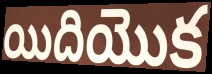
యిదియొక